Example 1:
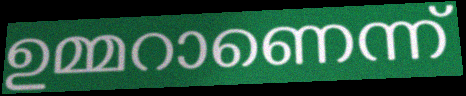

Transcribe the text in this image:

ഉമ്മറാണെന്ന്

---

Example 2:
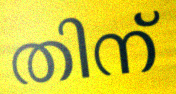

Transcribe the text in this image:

തിന്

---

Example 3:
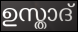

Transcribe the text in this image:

ഉസ്താദ്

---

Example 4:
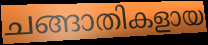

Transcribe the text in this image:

ചങ്ങാതികളായ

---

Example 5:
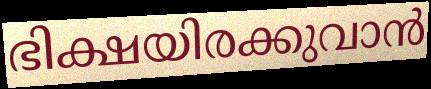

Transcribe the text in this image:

ഭിക്ഷയിരക്കുവാൻ